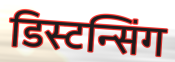
डिस्टन्सिंग